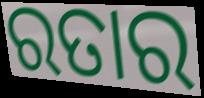
ରତାର